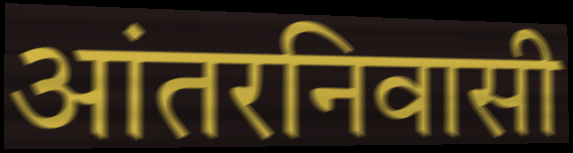
आंतरनिवासी